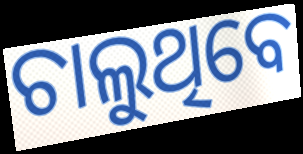
ଚାଲୁଥିବେ